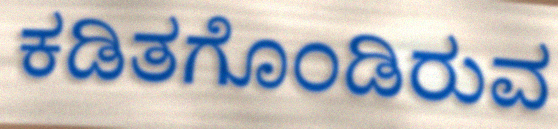
ಕಡಿತಗೊಂಡಿರುವ